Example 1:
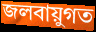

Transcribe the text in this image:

জলবায়ুগত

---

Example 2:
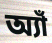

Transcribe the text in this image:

অ্যাঁ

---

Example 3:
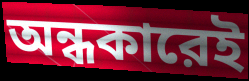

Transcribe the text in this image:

অন্ধকারেই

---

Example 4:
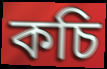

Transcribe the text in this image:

কচি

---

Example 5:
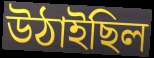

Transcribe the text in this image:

উঠাইছিল